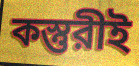
কস্তুরীই